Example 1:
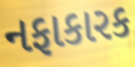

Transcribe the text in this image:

નફાકારક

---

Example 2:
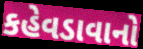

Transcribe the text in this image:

કહેવડાવાનો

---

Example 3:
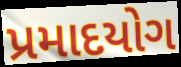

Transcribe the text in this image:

પ્રમાદયોગ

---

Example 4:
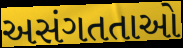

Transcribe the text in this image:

અસંગતતાઓ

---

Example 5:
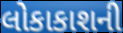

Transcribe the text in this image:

લોકાકાશની